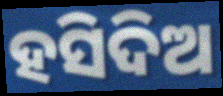
ହସିଦିଅ